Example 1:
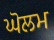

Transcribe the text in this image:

ਘੋਲਮ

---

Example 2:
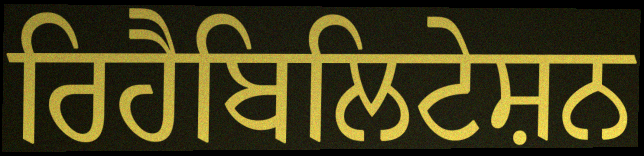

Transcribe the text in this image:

ਰਿਹੈਬਿਲਿਟੇਸ਼ਨ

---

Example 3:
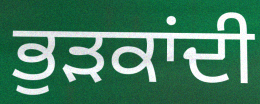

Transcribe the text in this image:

ਭੁੜਕਾਂਦੀ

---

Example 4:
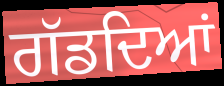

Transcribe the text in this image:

ਗੱਡਦਿਆਂ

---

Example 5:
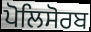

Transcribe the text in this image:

ਪੋਲਿਸੋਰਬ